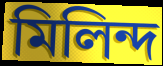
মিলিন্দ